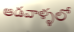
ఆడవాళ్ళలో